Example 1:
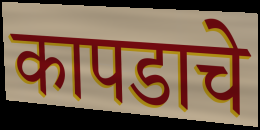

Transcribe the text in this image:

कापडाचे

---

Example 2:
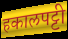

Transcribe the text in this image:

हकालपट्टी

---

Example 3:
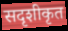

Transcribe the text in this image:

सदृशीकृत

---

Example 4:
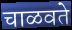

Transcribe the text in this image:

चाळवते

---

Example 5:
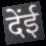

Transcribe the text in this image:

देंई